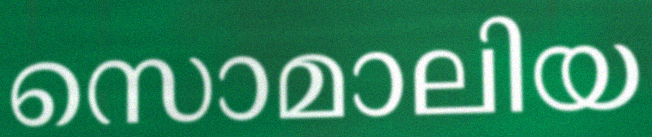
സൊമാലിയ